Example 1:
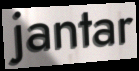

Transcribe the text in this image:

jantar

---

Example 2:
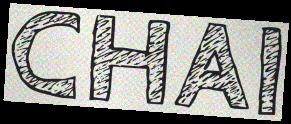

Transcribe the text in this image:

CHAI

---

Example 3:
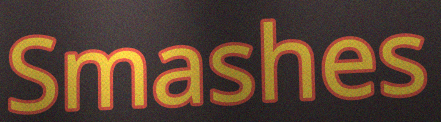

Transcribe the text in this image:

Smashes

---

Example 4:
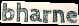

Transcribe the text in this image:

bharne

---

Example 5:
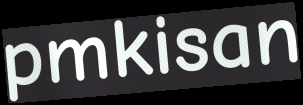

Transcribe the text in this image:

pmkisan